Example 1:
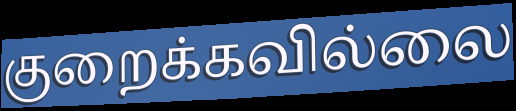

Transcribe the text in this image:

குறைக்கவில்லை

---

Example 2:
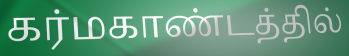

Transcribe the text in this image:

கர்மகாண்டத்தில்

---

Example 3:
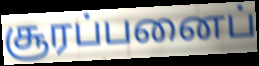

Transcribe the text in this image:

சூரப்பனைப்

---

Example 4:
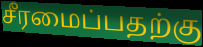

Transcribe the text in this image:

சீரமைப்பதற்கு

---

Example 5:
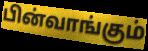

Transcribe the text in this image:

பின்வாங்கும்